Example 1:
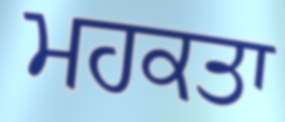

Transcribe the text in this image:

ਮਹਕਤਾ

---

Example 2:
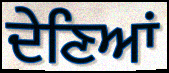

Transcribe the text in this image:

ਦੇਣਿਆਂ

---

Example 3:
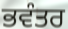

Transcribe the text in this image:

ਭਵੰਤਰ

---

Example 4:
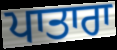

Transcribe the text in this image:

ਪਾਤਾਰਾ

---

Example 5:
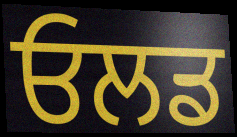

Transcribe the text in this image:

ਓਲਡ